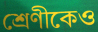
শ্রেণীকেও